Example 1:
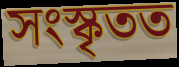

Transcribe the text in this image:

সংস্কৃতত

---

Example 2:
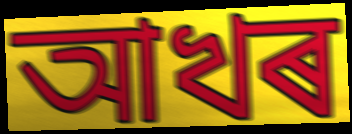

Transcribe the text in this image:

আখৰ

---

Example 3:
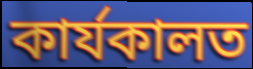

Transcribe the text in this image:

কাৰ্যকালত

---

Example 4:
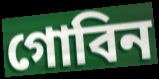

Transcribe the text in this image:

গোবিন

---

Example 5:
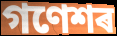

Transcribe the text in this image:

গণেশৰ